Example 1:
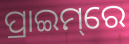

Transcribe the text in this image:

ପ୍ରାଇମ୍‌ରେ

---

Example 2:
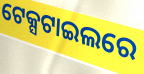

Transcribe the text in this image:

ଟେକ୍ସଟାଇଲରେ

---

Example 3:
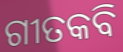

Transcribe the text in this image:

ଗୀତକବି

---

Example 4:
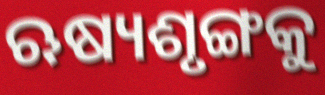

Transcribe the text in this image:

ଋଷ୍ୟଶୃଙ୍ଗକୁ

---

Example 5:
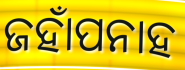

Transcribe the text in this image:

ଜହାଁପନାହ